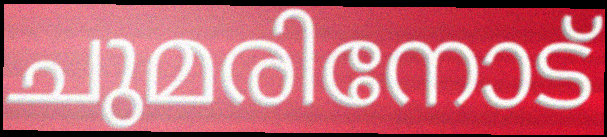
ചുമരിനോട്